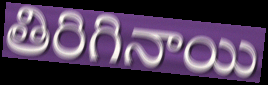
తిరిగినాయి